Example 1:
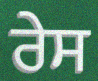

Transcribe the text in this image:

ਰੇਸ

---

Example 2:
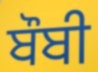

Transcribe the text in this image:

ਬੌਬੀ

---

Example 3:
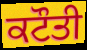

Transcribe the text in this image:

ਕਟੌਤੀ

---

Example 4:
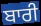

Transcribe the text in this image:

ਬਾਰੀ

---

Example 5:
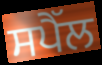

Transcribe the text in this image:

ਸਪੈੱਲ